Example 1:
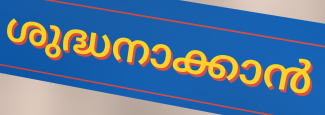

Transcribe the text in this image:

ശുദ്ധനാക്കാൻ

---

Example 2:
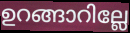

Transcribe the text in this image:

ഉറങ്ങാറില്ലേ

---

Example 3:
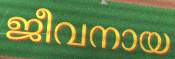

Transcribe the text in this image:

ജീവനായ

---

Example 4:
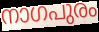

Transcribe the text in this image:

നാഗപുരം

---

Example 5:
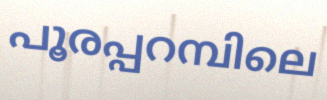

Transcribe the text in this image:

പൂരപ്പറമ്പിലെ